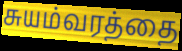
சுயம்வரத்தை